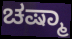
ಚಷ್ಮಾ